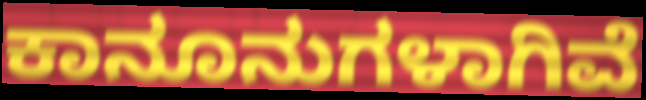
ಕಾನೂನುಗಳಾಗಿವೆ